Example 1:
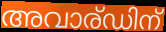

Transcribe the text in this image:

അവാര്ഡിന്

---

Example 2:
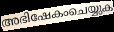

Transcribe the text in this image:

അഭിഷേകംചെയ്യുക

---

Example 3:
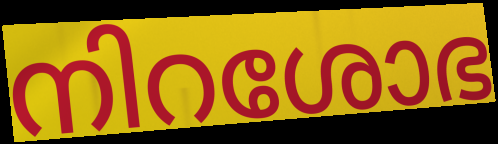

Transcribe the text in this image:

നിറശോഭ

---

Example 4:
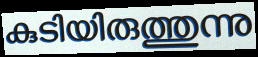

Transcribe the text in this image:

കുടിയിരുത്തുന്നു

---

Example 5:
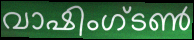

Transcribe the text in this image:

വാഷിംഗ്ടൺ